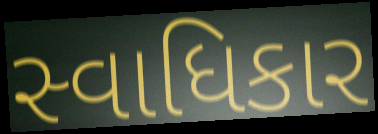
સ્વાધિકાર